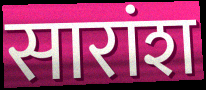
सारांश